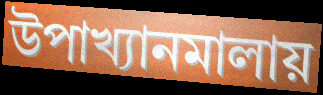
উপাখ্যানমালায়